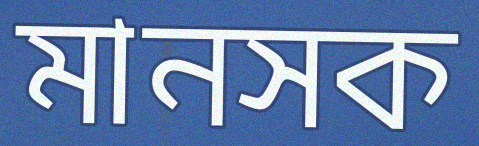
মানসক